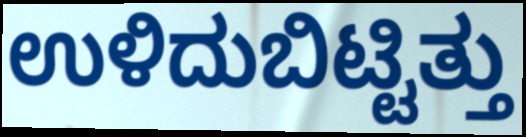
ಉಳಿದುಬಿಟ್ಟಿತ್ತು